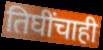
तिघींचाही